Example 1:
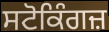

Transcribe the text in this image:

ਸਟੋਕਿੰਗਜ਼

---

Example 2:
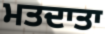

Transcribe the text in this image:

ਮਤਦਾਤਾ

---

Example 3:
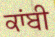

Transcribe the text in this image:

ਕਾਂਬੀ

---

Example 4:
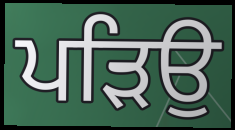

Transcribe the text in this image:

ਪੜਿਉ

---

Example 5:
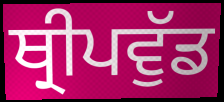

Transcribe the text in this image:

ਥ੍ਰੀਪਵੁੱਡ